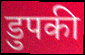
डुपकी